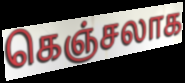
கெஞ்சலாக